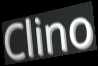
Clino